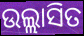
ଉଲ୍ଲାସିତ